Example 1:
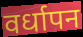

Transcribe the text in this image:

वर्धापन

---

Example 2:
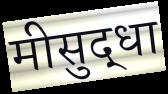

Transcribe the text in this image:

मीसुद्धा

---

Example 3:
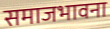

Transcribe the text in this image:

समाजभावना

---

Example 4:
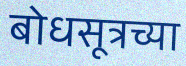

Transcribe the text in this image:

बोधसूत्रच्या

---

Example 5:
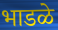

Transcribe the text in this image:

भाडळे